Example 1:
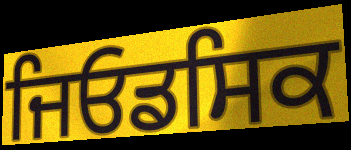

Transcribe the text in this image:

ਜਿਓਡਸਿਕ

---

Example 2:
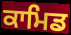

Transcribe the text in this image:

ਕਾਮਿਡ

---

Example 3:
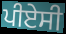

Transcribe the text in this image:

ਪੀਏਸੀ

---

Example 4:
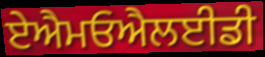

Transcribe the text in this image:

ਏਐਮਓਐਲਈਡੀ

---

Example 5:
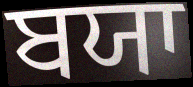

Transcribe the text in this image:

ਬਯਾ